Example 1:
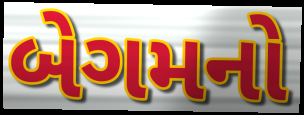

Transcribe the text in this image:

બેગમનો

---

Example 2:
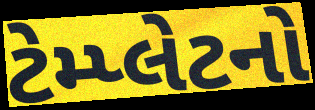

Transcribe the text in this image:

ટેમ્પ્લેટનો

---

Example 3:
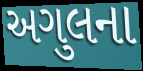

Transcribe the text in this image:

અગુલના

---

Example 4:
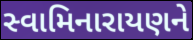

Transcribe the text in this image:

સ્વામિનારાયણને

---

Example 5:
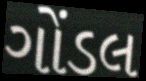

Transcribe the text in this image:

ગોંડલ